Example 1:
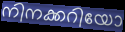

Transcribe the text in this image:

നിനക്കറിയോ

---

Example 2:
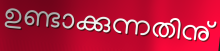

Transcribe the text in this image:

ഉണ്ടാക്കുന്നതിനു്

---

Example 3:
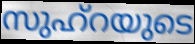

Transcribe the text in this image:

സുഹ്റയുടെ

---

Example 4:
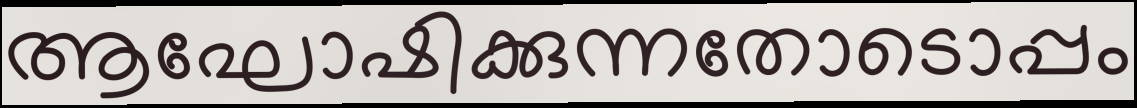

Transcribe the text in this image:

ആഘോഷിക്കുന്നതോടൊപ്പം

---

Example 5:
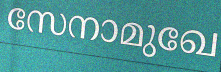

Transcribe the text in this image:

സേനാമുഖേ